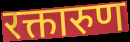
रक्तारुण